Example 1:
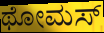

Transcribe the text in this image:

ಥೋಮಸ್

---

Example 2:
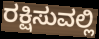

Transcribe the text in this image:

ರಕ್ಷಿಸುವಲ್ಲಿ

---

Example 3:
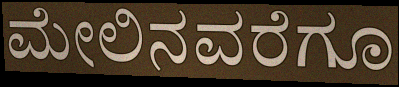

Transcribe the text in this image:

ಮೇಲಿನವರೆಗೂ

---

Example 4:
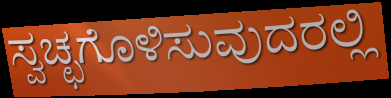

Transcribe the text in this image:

ಸ್ವಚ್ಛಗೊಳಿಸುವುದರಲ್ಲಿ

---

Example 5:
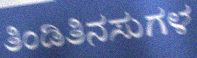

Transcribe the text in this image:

ತಿಂಡಿತಿನಸುಗಳ